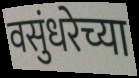
वसुंधरेच्या